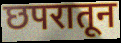
छपरातून